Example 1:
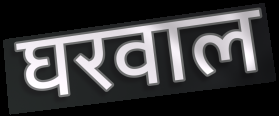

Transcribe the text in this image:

घरवाल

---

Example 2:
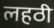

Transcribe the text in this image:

लहठी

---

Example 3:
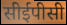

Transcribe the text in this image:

सीईपीसी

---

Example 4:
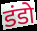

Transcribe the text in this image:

डंडो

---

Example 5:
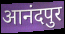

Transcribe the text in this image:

आनंदपुर